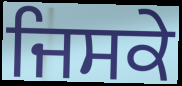
ਜਿਸਕੇ